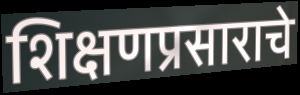
शिक्षणप्रसाराचे